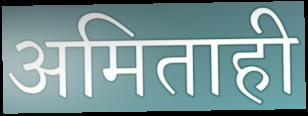
अमिताही